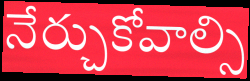
నేర్చుకోవాల్సి